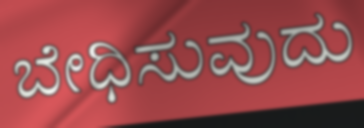
ಬೇಧಿಸುವುದು